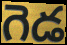
గెడ